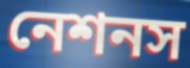
নেশনস